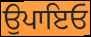
ਉਪਾਇਓ